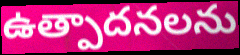
ఉత్పాదనలను